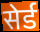
सेर्ड